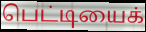
பெட்டியைக்